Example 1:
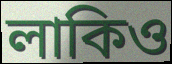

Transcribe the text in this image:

লাকিও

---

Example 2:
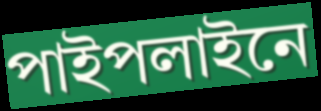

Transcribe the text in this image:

পাইপলাইনে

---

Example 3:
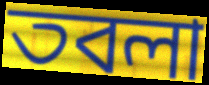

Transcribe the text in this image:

তবলা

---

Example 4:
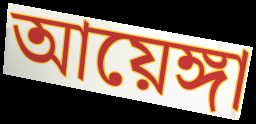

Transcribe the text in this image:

আয়েঙ্গা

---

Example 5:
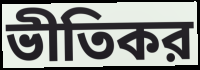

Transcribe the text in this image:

ভীতিকর